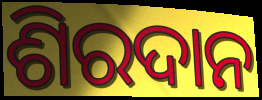
ଶିରଦାନ